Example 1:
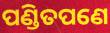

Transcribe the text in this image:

ପଣ୍ଡିତପଣେ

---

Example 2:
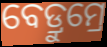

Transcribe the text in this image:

ବେଡ୍ରୁମ୍ରେ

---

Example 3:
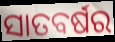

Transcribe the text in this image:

ସାତବର୍ଷର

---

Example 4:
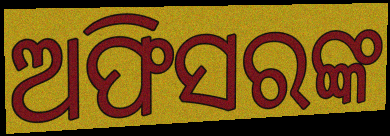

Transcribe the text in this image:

ଅଫିସରଙ୍କ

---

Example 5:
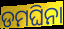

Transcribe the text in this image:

ଡମଘିନା